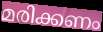
മരിക്കണം